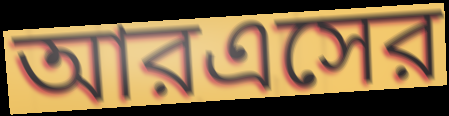
আরএসের